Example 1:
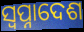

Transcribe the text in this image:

ସ୍ଵପ୍ନାଦେଶ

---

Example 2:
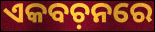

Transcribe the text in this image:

ଏକବଚ଼ନରେ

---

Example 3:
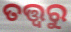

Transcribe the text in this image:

ତତ୍ତ୍ୱରୁ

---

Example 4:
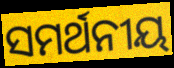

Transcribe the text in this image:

ସମର୍ଥନୀୟ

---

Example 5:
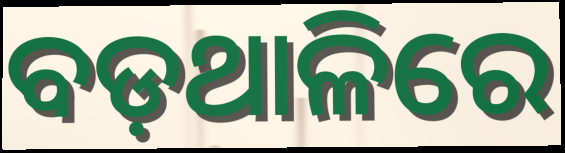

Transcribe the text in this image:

ବଡ଼ଥାଳିରେ